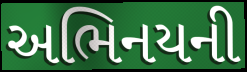
અભિનયની